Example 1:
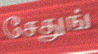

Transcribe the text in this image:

சேதுங்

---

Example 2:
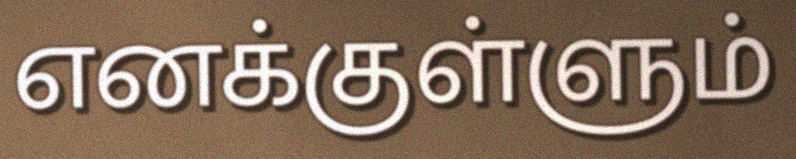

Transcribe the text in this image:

எனக்குள்ளும்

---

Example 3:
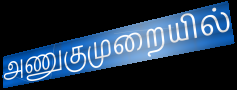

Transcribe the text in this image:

அணுகுமுறையில்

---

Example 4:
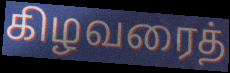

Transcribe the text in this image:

கிழவரைத்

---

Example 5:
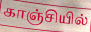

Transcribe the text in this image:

காஞ்சியில்